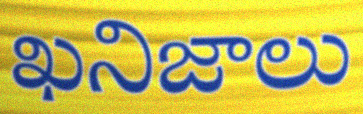
ఖనిజాలు